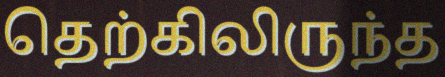
தெற்கிலிருந்த